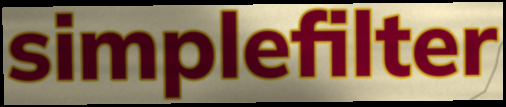
simplefilter